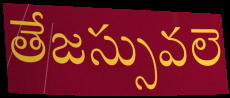
తేజస్సువలె